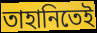
তাহানিতেই